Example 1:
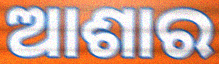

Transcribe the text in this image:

ଆଶାର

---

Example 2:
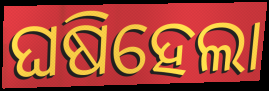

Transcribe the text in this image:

ଘଷିହେଲା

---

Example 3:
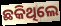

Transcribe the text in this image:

ଛକିଥିଲେ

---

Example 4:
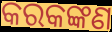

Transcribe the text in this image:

କରକଙ୍କଣ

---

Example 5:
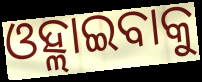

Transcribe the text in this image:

ଓହ୍ଲାଇବାକୁ